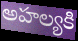
అహల్యకి